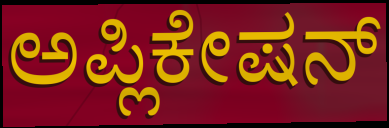
ಅಪ್ಲಿಕೇಷನ್